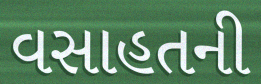
વસાહતની